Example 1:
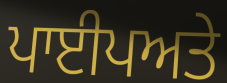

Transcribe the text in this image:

ਪਾਈਪਅਤੇ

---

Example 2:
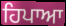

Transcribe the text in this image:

ਹਿਪਾਆ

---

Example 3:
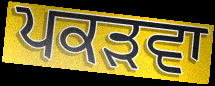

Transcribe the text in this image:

ਪਕੜਵਾ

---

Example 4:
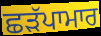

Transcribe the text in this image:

ਛੜੱਪਾਮਾਰ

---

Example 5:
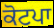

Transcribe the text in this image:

ਕੋਟਪਾ